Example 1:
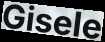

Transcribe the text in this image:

Gisele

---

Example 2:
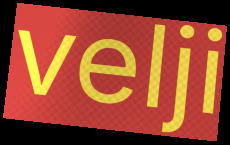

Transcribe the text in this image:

velji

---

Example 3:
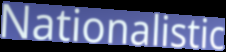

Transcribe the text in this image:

Nationalistic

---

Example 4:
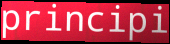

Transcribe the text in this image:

principi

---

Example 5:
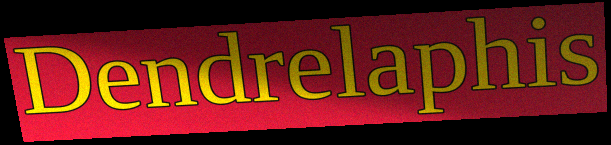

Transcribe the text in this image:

Dendrelaphis